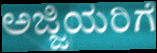
ಅಜ್ಜಿಯರಿಗೆ